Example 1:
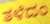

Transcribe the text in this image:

ತಳೆದಂ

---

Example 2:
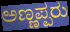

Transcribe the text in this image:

ಅಣ್ಣಪ್ಪರು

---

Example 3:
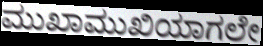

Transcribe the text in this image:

ಮುಖಾಮುಖಿಯಾಗಲೇ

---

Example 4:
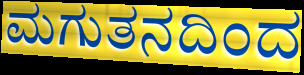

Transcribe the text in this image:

ಮಗುತನದಿಂದ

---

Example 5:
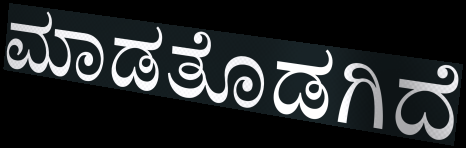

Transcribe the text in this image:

ಮಾಡತೊಡಗಿದೆ